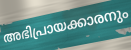
അഭിപ്രായക്കാരനും